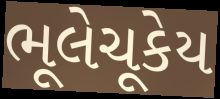
ભૂલેચૂકેય